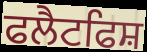
ਫਲੈਟਫਿਸ਼